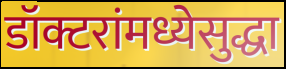
डॉक्टरांमध्येसुद्धा